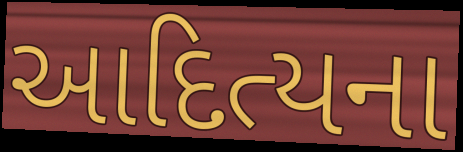
આદિત્યના